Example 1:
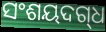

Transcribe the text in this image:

ସଂଶୟଦଗ୍‌ଧ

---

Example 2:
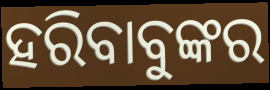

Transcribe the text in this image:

ହରିବାବୁଙ୍କର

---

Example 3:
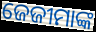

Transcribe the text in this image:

ଜେଜୀମାଙ୍କ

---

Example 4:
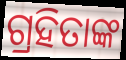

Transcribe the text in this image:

ଗ୍ରହିତାଙ୍କ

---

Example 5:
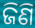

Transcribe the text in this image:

ଜିଣି